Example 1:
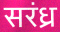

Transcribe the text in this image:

सरंध्र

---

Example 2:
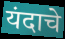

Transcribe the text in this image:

यंदाचे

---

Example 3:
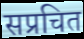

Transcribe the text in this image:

सप्रचित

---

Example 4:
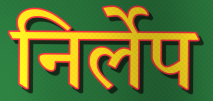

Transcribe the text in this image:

निर्लेप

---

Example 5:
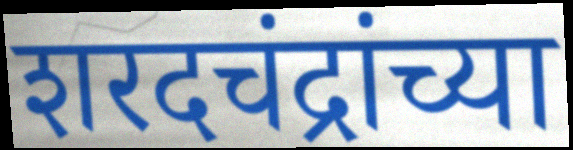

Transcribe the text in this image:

शरदचंद्रांच्या